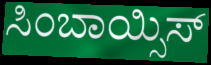
ಸಿಂಬಾಯ್ಸಿಸ್